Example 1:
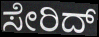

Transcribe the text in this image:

ಸೇರಿದ್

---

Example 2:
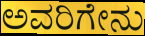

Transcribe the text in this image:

ಅವರಿಗೇನು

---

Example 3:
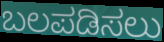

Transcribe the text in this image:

ಬಲಪಡಿಸಲು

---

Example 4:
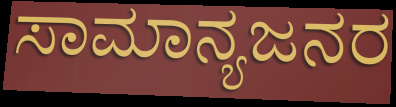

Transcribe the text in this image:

ಸಾಮಾನ್ಯಜನರ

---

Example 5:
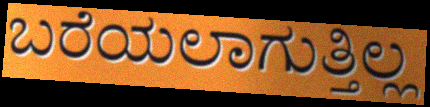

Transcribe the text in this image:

ಬರೆಯಲಾಗುತ್ತಿಲ್ಲ